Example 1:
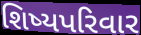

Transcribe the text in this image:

શિષ્યપરિવાર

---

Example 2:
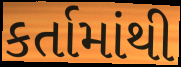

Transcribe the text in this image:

કર્તામાંથી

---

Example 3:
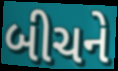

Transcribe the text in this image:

બીચને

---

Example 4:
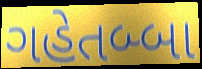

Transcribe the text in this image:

ગહેતબ્બા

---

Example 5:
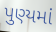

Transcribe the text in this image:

પુણ્યમાં